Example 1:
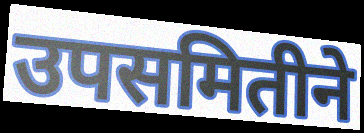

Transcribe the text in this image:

उपसमितीने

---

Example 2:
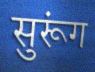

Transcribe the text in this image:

सुरूंग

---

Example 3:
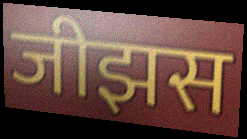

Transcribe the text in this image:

जीझस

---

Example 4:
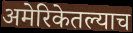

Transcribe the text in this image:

अमेरिकेतल्याच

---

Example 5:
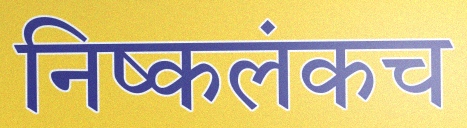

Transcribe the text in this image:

निष्कलंकच